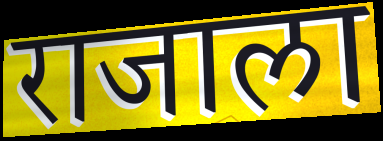
राजाला